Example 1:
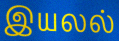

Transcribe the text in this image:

இயலல்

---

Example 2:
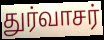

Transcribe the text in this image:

துர்வாசர்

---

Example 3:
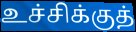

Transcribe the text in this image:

உச்சிக்குத்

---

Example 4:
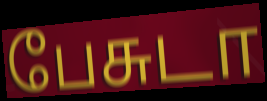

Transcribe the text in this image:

பேசுடா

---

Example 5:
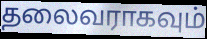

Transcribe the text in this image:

தலைவராகவும்